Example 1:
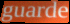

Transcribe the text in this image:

guarde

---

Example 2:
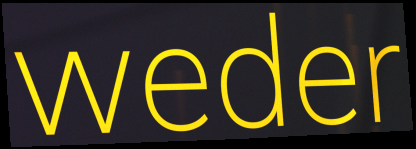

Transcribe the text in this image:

weder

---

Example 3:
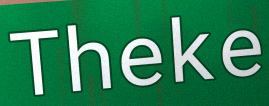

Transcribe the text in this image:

Theke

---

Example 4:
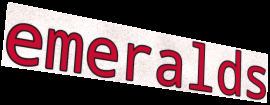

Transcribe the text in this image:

emeralds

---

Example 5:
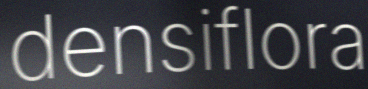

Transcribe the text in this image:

densiflora